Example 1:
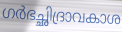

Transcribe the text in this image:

ഗർഭച്ഛിദ്രാവകാശ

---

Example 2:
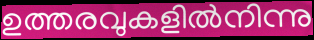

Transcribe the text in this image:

ഉത്തരവുകളിൽനിന്നു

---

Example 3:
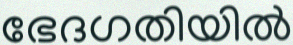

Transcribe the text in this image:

ഭേദഗതിയിൽ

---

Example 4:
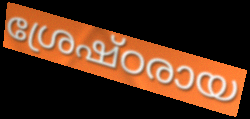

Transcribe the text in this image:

ശ്രേഷ്ഠരായ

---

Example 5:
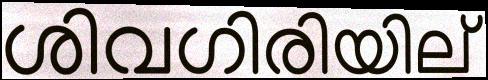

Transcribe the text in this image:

ശിവഗിരിയില്